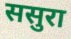
ससुरा